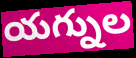
యగ్నుల